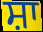
ਸ਼ਾ